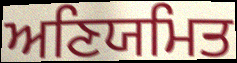
ਅਣਿਯਮਿਤ